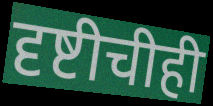
दृष्टीचीही